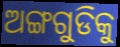
ଅଙ୍ଗଗୁଡିକୁ